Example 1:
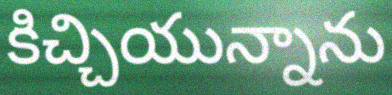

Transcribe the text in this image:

కిచ్చియున్నాను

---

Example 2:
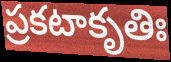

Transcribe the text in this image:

ప్రకటాకృతిః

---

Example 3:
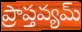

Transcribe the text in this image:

ప్రాప్తవ్యమ్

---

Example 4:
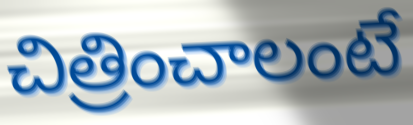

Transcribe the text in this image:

చిత్రించాలంటే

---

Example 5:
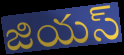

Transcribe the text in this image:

జియస్